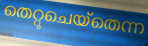
തെറ്റുചെയ്‌തെന്ന